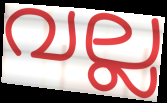
വല്ല